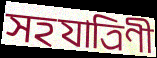
সহযাত্রিণী